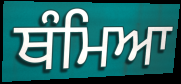
ਥੰਮਿਆ